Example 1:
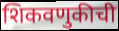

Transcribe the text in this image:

शिकवणुकीची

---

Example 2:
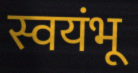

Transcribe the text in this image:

स्वयंभू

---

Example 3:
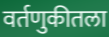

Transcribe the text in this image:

वर्तणुकीतला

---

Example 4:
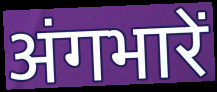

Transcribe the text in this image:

अंगभारें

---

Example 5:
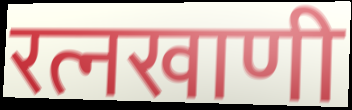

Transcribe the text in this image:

रत्नखाणी